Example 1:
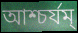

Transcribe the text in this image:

আশ্চর্যম্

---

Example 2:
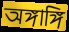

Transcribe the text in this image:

অঙ্গাঙ্গি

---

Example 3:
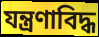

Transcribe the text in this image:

যন্ত্রণাবিদ্ধ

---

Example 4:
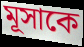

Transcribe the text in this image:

মূসাকে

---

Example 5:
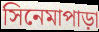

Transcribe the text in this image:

সিনেমাপাড়া